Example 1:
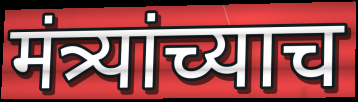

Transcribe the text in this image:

मंत्र्यांच्याच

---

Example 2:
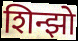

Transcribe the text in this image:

शिन्झो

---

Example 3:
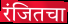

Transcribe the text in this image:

रंजितचा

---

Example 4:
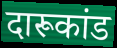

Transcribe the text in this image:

दारूकांड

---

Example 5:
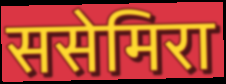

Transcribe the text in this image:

ससेमिरा